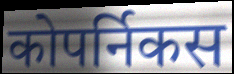
कोपर्निकस